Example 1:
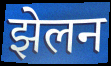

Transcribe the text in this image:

झेलन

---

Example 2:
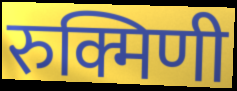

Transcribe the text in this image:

रुक्मिणी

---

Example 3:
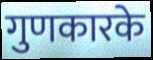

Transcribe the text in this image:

गुणकारके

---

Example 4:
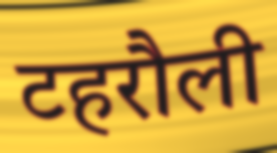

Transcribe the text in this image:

टहरौली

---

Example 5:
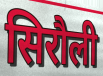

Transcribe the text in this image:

सिरौली